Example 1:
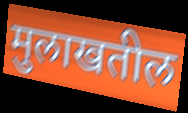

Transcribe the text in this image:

मुलाखतील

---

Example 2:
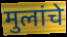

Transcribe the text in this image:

मुलांचे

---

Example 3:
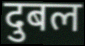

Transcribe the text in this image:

दुबल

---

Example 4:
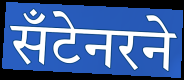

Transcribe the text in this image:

सँटेनरने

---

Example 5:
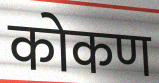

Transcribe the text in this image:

कोकण